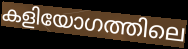
കളിയോഗത്തിലെ